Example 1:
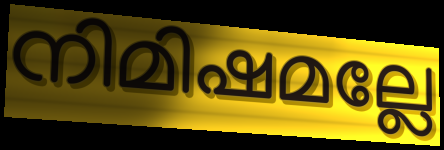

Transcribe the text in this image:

നിമിഷമല്ലേ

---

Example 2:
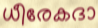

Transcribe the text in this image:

ധീരേകദാ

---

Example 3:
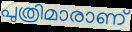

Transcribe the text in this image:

പുത്രിമാരാണ്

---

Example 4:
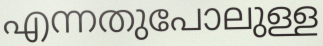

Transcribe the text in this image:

എന്നതുപോലുള്ള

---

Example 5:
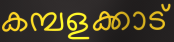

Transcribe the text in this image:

കമ്പളക്കാട്